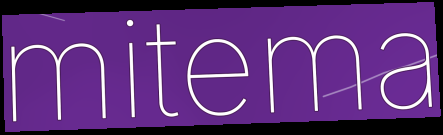
mitema